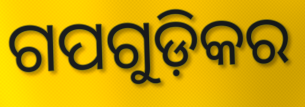
ଗପଗୁଡ଼ିକର